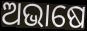
ଅଭାଷେ